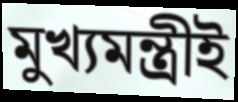
মুখ্যমন্ত্রীই